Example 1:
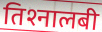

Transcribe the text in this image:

तिश्नालबी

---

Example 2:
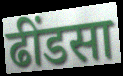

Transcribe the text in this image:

ढींडसा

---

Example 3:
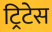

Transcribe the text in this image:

ट्रिटेस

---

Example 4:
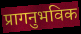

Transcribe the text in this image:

प्रागनुभविक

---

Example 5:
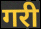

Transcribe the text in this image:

गरी